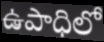
ఉపాధిలో